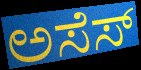
ಅಸೆಸ್